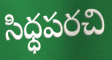
సిధ్ధపరచి